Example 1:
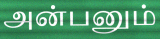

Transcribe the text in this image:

அன்பனும்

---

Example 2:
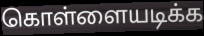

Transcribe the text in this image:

கொள்ளையடிக்க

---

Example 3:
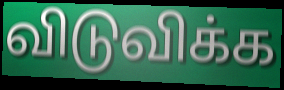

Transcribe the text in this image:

விடுவிக்க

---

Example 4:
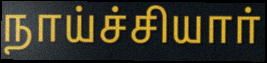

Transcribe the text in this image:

நாய்ச்சியார்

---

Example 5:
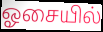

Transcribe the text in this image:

ஓசையில்